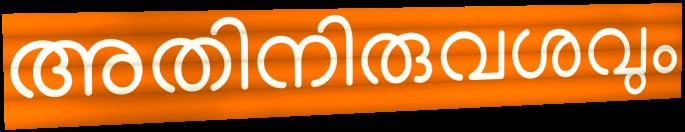
അതിനിരുവശവും